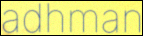
adhman